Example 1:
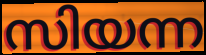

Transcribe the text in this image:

സിയന്ന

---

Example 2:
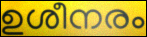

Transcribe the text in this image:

ഉശീനരം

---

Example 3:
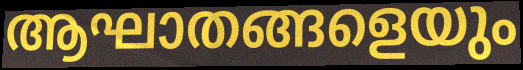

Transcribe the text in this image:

ആഘാതങ്ങളെയും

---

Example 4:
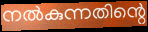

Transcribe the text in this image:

നൽകുന്നതിന്റെ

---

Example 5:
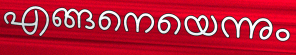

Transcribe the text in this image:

എങ്ങനെയെന്നും